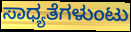
ಸಾಧ್ಯತೆಗಳುಂಟು